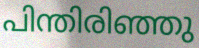
പിന്തിരിഞ്ഞു